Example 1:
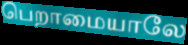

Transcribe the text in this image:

பெறாமையாலே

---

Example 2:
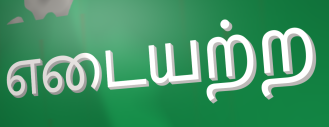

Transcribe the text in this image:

எடையற்ற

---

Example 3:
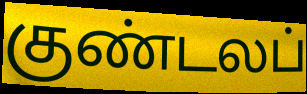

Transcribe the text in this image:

குண்டலப்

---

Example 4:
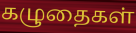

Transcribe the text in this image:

கழுதைகள்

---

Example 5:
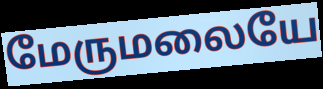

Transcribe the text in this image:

மேருமலையே